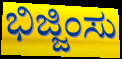
ಭಿಜ್ಜಿಂಸು